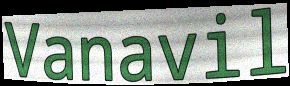
Vanavil